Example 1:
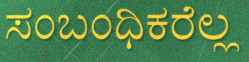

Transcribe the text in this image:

ಸಂಬಂಧಿಕರೆಲ್ಲ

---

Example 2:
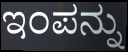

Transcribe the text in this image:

ಇಂಪನ್ನು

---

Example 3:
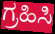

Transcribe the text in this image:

ಗ್ರಹಿಸಿ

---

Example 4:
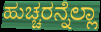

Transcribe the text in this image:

ಹುಚ್ಚರನ್ನೆಲ್ಲಾ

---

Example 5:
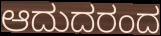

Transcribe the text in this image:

ಆದುದರಂದ